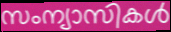
സംന്യാസികൾ